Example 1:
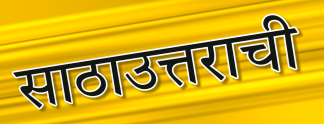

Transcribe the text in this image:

साठाउत्तराची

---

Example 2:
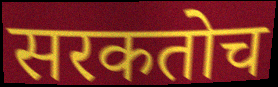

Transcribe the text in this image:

सरकतोच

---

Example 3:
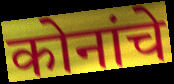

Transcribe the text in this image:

कोनांचे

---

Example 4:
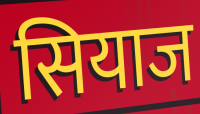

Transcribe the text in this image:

सियाज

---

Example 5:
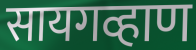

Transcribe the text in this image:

सायगव्हाण